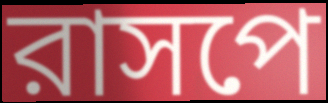
রাসপে